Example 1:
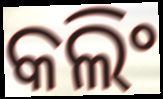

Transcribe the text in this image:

କଲିଂ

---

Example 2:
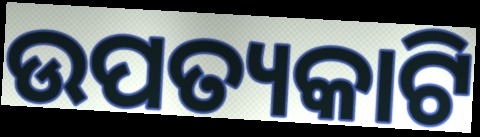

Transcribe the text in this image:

ଉପତ୍ୟକାଟି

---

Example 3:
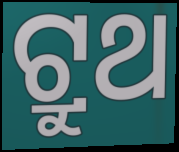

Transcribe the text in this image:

ଟ୍ରୁଥ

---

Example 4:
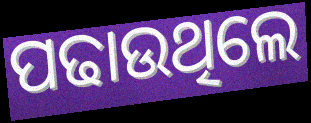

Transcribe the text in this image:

ପଢାଉଥିଲେ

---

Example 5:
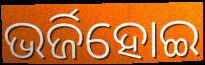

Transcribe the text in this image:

ଭର୍ଜିହୋଇ